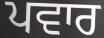
ਪਵਾਰ